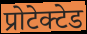
प्रोटेक्टेड